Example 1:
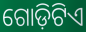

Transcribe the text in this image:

ଗୋଡ଼ିଟିଏ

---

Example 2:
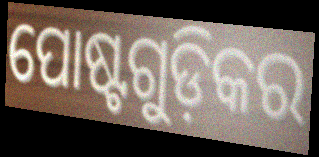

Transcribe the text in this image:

ପୋଷ୍ଟଗୁଡ଼ିକର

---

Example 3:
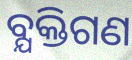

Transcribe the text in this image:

ବ୍ଯକ୍ତିଗଣ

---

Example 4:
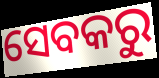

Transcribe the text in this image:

ସେବକରୁ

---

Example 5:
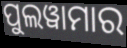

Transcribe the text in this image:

ପୁଲୱାମାର